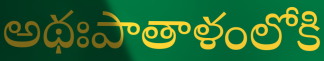
అథఃపాతాళంలోకి